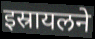
इस्रायलने